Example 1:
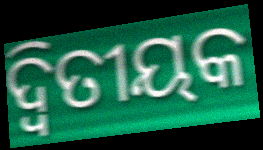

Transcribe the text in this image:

ଦ୍ୱିତୀୟକ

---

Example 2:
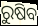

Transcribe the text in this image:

ରୁଷିବ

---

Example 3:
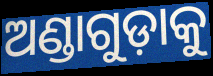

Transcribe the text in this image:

ଅଣ୍ଡାଗୁଡ଼ାକୁ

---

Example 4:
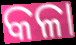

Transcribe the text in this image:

କଳା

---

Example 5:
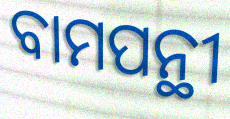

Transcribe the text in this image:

ବାମପନ୍ଥୀ